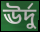
ঊর্দু